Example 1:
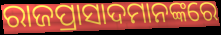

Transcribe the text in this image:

ରାଜପ୍ରାସାଦମାନଙ୍କରେ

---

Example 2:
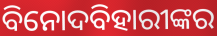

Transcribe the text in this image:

ବିନୋଦବିହାରୀଙ୍କର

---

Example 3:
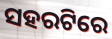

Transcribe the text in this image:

ସହରଟିରେ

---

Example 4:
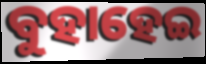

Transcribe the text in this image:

ବୁହାହେଇ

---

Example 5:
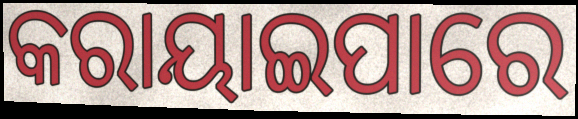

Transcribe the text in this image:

କରାୟାଇପାରେ